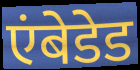
एंबेडेड